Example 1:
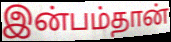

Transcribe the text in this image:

இன்பம்தான்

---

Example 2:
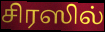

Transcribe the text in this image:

சிரஸில்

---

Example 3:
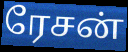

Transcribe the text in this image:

ரேசன்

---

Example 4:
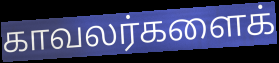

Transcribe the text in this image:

காவலர்களைக்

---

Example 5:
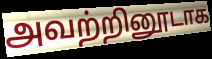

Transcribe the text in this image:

அவற்றினூடாக